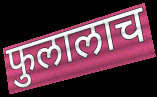
फुलालाच